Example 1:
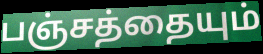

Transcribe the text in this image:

பஞ்சத்தையும்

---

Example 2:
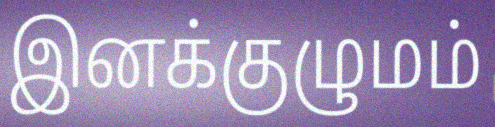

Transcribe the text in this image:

இனக்குழுமம்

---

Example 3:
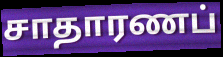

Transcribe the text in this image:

சாதாரணப்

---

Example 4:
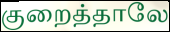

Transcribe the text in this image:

குறைத்தாலே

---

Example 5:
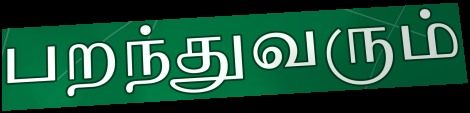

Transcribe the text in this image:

பறந்துவரும்